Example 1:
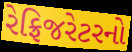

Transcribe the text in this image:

રેફ્રિજરેટરનો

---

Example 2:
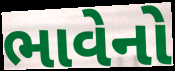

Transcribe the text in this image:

ભાવેનો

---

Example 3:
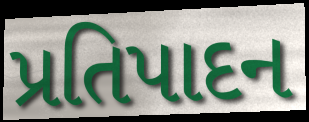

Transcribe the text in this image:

પ્રતિપાદન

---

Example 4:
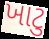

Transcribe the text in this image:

ખાટુ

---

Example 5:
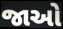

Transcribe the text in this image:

જાઓ